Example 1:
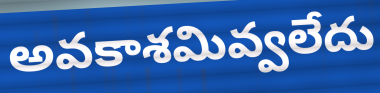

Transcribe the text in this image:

అవకాశమివ్వలేదు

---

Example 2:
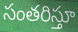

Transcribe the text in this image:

సంతరిస్తూ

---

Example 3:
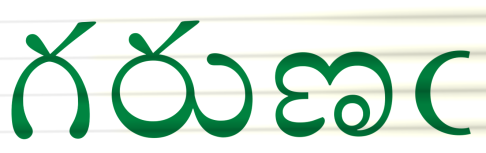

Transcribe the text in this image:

గరుణఁ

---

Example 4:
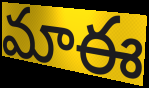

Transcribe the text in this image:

మాఈ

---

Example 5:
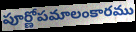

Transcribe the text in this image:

పూర్ణోపమాలంకారము